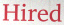
Hired